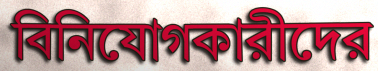
বিনিযোগকারীদের